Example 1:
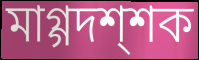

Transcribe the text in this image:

মাগ্গদশ্শক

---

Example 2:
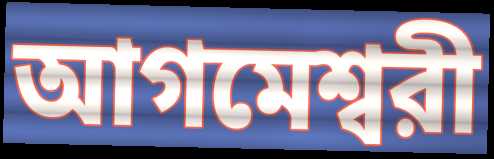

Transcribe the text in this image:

আগমেশ্বরী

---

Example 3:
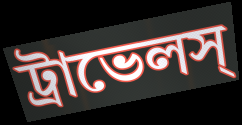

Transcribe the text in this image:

ট্রাভেলস্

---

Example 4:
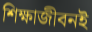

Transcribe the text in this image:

শিক্ষাজীবনই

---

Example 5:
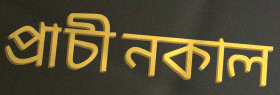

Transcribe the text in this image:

প্রাচীনকাল